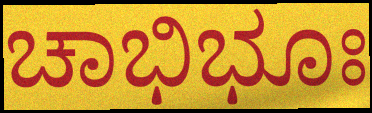
ಚಾಭಿಭೂಃ